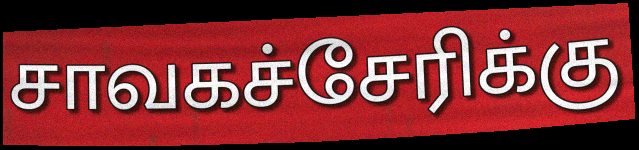
சாவகச்சேரிக்கு